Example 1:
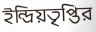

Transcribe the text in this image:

ইন্দ্রিয়তৃপ্তির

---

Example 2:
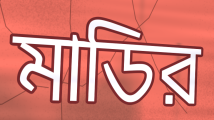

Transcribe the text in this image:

মাডির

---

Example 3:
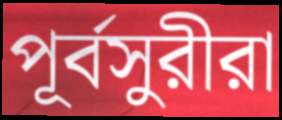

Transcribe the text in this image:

পূর্বসুরীরা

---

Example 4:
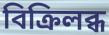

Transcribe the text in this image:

বিক্রিলব্ধ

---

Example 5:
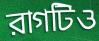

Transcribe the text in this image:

রাগটিও